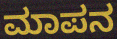
ಮಾಪನ